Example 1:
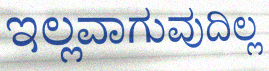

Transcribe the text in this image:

ಇಲ್ಲವಾಗುವುದಿಲ್ಲ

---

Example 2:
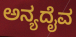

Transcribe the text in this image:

ಅನ್ಯದೈವ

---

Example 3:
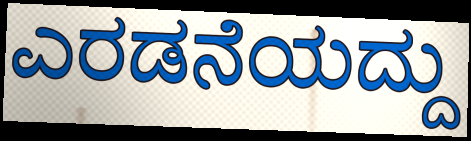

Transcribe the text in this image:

ಎರಡನೆಯದ್ದು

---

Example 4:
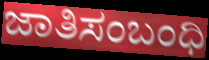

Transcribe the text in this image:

ಜಾತಿಸಂಬಂಧಿ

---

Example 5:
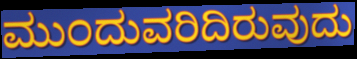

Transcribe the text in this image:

ಮುಂದುವರಿದಿರುವುದು